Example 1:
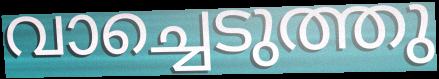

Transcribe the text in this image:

വാച്ചെടുത്തു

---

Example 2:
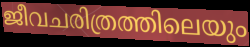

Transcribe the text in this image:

ജീവചരിത്രത്തിലെയും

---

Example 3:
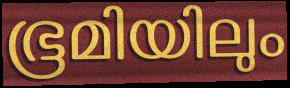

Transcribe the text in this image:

ഭൂമിയിലും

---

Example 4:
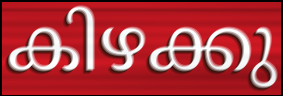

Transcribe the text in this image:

കിഴക്കു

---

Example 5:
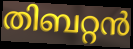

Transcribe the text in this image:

തിബറ്റൻ